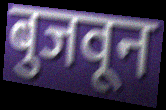
बुजवून